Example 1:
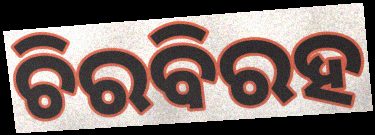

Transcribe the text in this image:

ଚିରବିରହ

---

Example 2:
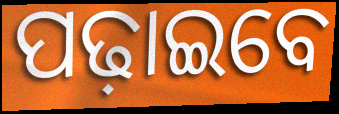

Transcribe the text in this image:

ପଢ଼ାଇବେ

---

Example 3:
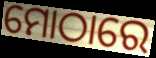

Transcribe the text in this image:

ମୋଠାରେ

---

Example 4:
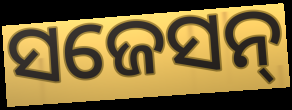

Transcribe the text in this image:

ସଜେସନ୍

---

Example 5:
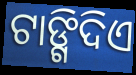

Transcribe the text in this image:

ଟାଙ୍ଗିଦିଏ